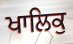
ਖਾਲਿਕੁ